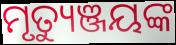
ମୃତ୍ୟୁଞ୍ଜୟଙ୍କ